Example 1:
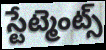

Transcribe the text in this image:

స్టేట్మెంట్స్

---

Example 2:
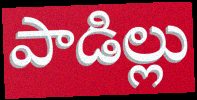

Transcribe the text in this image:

పాడిల్లు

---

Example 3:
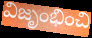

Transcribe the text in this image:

విజృంభించి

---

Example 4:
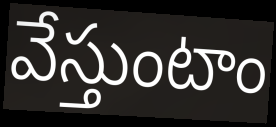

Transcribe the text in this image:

వేస్తుంటాం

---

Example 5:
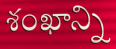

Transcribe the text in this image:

శంఖాన్ని